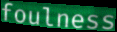
foulness